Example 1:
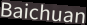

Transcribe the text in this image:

Baichuan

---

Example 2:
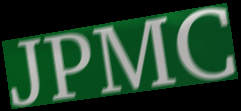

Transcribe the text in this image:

JPMC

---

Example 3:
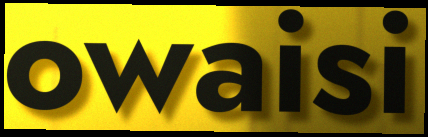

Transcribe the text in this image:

owaisi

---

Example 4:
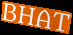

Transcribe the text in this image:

BHAT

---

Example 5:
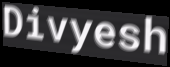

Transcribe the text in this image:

Divyesh